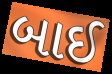
બાઈ